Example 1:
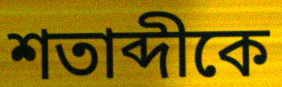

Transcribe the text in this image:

শতাব্দীকে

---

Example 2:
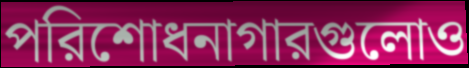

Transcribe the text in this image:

পরিশোধনাগারগুলোও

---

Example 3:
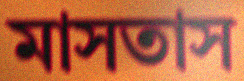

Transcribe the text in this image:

মাসতাস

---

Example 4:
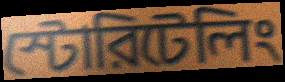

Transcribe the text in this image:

স্টোরিটেলিং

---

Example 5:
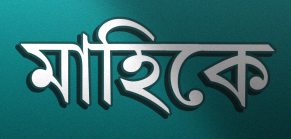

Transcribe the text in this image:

মাহিকে